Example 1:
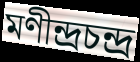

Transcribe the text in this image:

মণীন্দ্রচন্দ্র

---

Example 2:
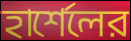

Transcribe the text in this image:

হার্শেলের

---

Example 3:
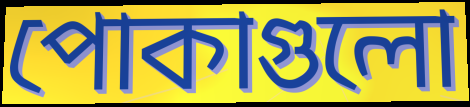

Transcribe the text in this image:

পোকাগুলো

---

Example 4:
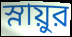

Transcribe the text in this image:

স্নায়ুর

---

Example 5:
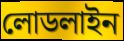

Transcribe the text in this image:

লোডলাইন